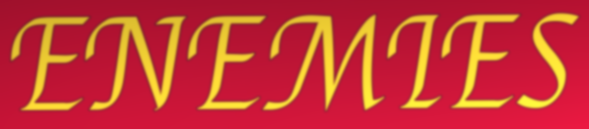
ENEMIES